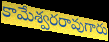
కామేశ్వరరావుగారు